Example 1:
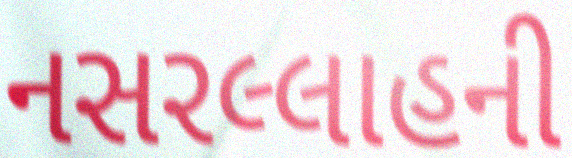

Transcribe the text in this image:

નસરલ્લાહની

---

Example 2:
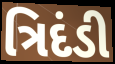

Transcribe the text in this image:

ત્રિદંડી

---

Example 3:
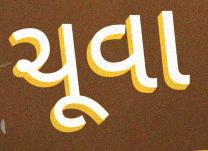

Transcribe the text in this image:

ચૂવા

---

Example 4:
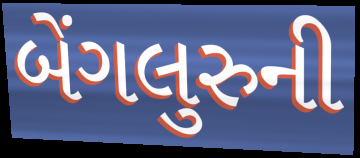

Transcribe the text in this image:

બેંગલુરુની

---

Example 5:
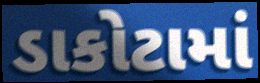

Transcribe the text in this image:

ડાકોટામાં